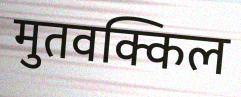
मुतवक्किल